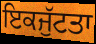
ਇਕਜੁੱਟਤਾ